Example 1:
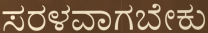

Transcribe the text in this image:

ಸರಳವಾಗಬೇಕು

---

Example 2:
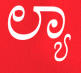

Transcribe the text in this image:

ಲ್ಯಾ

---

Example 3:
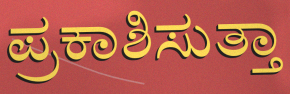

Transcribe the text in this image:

ಪ್ರಕಾಶಿಸುತ್ತಾ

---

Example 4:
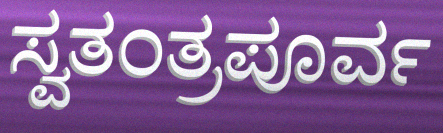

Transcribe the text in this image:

ಸ್ವತಂತ್ರಪೂರ್ವ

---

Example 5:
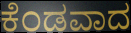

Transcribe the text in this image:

ಕೆಂಡವಾದ